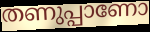
തണുപ്പാണോ